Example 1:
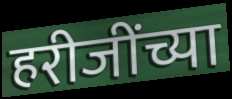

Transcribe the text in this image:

हरीजींच्या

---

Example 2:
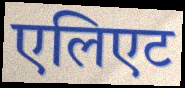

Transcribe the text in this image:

एलिएट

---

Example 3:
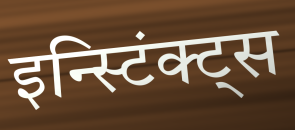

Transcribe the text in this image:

इन्स्टिंक्ट्स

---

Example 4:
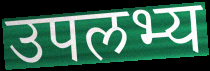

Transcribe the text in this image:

उपलभ्य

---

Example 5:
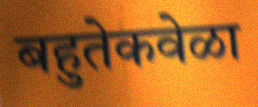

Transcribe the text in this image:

बहुतेकवेळा